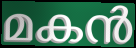
മകൻ